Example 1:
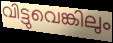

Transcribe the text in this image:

വിട്ടുവെങ്കിലും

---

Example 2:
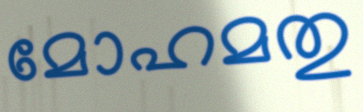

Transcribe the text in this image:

മോഹമതു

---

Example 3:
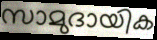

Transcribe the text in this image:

സാമുദായിക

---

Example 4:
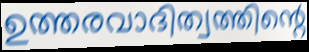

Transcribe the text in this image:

ഉത്തരവാദിത്വത്തിന്റെ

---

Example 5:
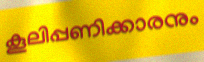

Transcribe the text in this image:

കൂലിപ്പണിക്കാരനും